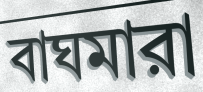
বাঘমারা